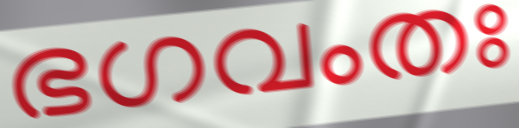
ഭഗവംതഃ